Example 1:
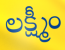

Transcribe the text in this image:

లక్ష్మీం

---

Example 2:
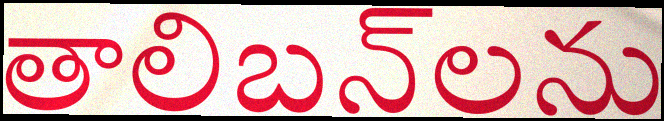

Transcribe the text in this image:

తాలిబన్‌లను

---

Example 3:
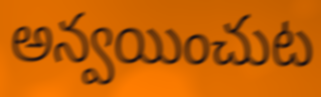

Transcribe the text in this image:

అన్వయించుట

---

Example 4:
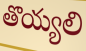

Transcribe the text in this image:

తొయ్యలి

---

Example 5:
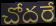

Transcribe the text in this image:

చోదరే